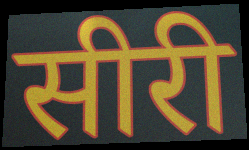
सीरी